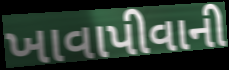
ખાવાપીવાની